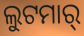
ଲୁଟମାର୍